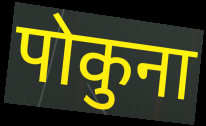
पोकुना